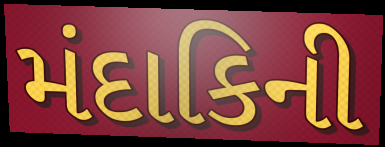
મંદાકિની